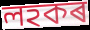
লহকৰ